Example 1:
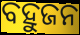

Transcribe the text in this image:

ବହୁଜନ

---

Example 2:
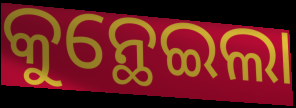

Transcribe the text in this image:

କୁନ୍ଥେଇଲା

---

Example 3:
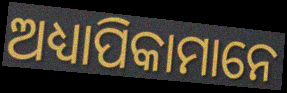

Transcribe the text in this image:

ଅଧ୍ୟାପିକାମାନେ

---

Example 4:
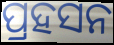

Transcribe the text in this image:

ପ୍ରହସନ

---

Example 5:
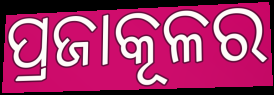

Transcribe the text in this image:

ପ୍ରଜାକୂଳର